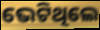
ଭେଟିଥିଲେ